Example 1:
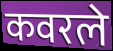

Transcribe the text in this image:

कवरले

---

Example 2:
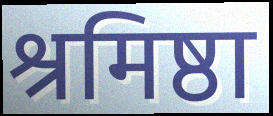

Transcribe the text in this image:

श्रमिष्ठा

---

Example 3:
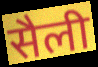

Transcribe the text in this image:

सैली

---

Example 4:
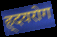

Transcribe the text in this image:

ह्दयरोग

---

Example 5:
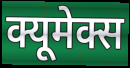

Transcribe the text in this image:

क्यूमेक्स